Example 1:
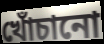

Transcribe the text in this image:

খোঁচানো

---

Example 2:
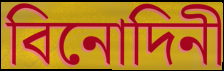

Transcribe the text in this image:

বিনোদিনী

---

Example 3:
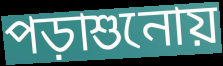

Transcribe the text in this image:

পড়াশুনোয়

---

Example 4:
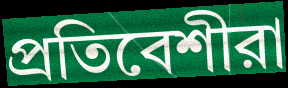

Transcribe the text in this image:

প্রতিবেশীরা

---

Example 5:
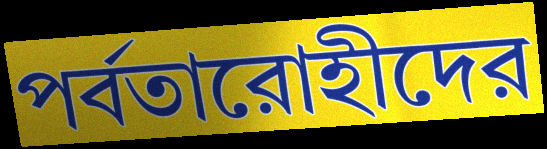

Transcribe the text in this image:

পর্বতারোহীদের